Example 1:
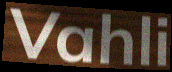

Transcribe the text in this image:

Vahli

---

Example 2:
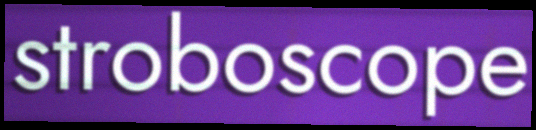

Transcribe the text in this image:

stroboscope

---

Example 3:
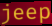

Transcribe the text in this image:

jeep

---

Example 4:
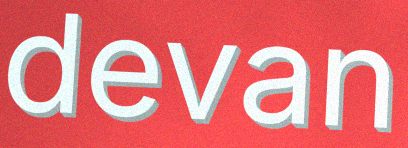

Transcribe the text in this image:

devan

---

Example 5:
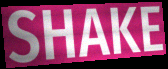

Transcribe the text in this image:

SHAKE